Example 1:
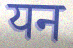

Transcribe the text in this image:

यन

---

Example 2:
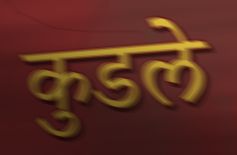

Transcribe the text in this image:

कुडले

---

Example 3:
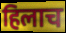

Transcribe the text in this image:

हिलाच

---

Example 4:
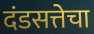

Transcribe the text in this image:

दंडसत्तेचा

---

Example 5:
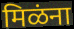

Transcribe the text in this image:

मिळंना